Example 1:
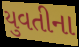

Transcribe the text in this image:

યુવતીના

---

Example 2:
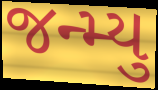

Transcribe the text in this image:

જન્મ્યુ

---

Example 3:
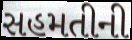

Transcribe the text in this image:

સહમતીની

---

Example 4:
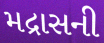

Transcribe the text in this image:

મદ્રાસની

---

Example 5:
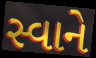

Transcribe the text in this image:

સ્વાને